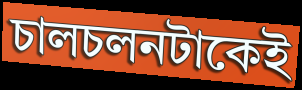
চালচলনটাকেই